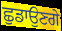
ਛੁਡਾਉਣਗੇ